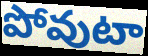
పోవుటా